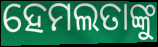
ହେମଲତାଙ୍କୁ